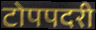
टोपपदरी